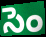
సెం